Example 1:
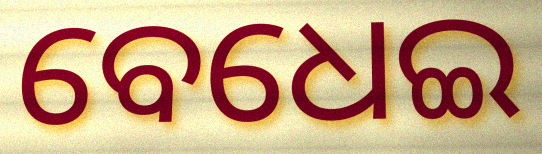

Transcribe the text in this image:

ବେଧେଇ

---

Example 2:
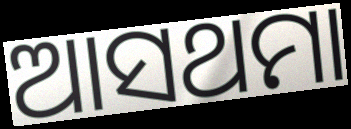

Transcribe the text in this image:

ଆସଥମା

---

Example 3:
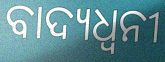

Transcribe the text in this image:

ବାଦ୍ୟଧ୍ୱନୀ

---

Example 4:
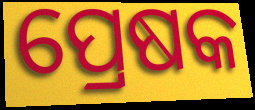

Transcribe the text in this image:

ପ୍ରେଷକ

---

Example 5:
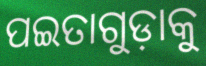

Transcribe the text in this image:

ପଇତାଗୁଡ଼ାକୁ